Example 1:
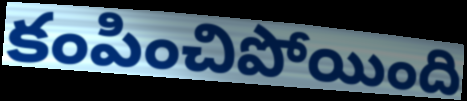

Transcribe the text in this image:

కంపించిపోయింది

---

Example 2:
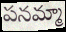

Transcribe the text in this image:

పనమ్మా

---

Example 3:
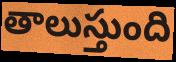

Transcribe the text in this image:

తాలుస్తుంది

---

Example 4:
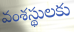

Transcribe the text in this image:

వంశస్థులకు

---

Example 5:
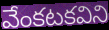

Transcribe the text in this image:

వేంకటకవిని